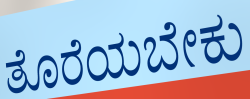
ತೊರೆಯಬೇಕು